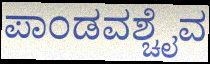
ಪಾಂಡವಶ್ಚೈವ